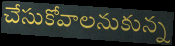
చేసుకోవాలనుకున్న